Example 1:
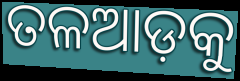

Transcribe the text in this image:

ତଳଆଡ଼କୁ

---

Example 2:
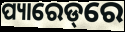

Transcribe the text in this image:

ପ୍ୟାରେଡ୍‌ରେ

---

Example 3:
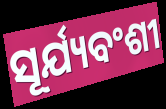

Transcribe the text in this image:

ସୂର୍ଯ୍ୟବଂଶୀ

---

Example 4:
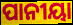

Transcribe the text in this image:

ପାନୀୟା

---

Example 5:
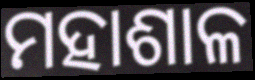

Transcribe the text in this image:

ମହାଶାଳ